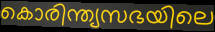
കൊരിന്ത്യസഭയിലെ